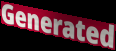
Generated